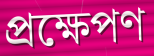
প্ৰক্ষেপণ